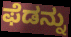
ಫೆಡನ್ನು